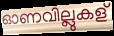
ഓണവില്ലുകള്